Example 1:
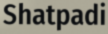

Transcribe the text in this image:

Shatpadi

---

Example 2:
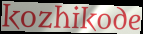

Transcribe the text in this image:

kozhikode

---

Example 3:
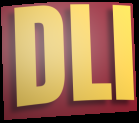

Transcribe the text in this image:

DLI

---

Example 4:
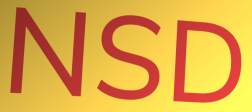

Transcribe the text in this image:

NSD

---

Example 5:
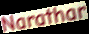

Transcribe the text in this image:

Narathar